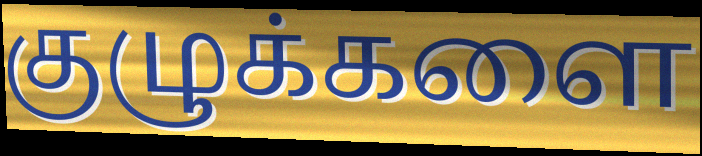
குழுக்களை